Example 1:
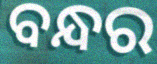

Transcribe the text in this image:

ବନ୍ଧର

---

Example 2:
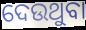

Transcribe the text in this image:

ଦେଉଥୁବା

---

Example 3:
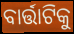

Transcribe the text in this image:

ବାର୍ତ୍ତାଟିକୁ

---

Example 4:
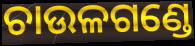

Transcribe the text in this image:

ଚାଉଳଗଣ୍ଡେ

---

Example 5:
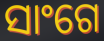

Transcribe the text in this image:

ସାଂଗେ